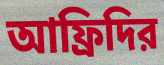
আফ্রিদির